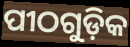
ପୀଠଗୁଡ଼ିକ